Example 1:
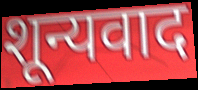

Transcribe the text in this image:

शून्यवाद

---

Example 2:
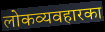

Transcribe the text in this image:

लोकव्यवहारका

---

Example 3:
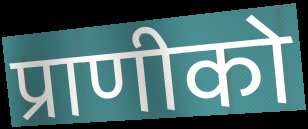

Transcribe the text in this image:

प्राणीको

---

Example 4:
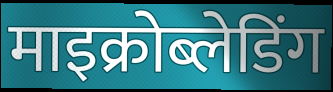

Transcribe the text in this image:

माइक्रोब्लेडिंग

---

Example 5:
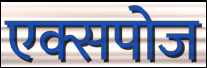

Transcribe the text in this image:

एक्सपोज